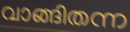
വാങ്ങിതന്ന